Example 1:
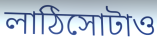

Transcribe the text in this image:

লাঠিসোটাও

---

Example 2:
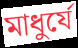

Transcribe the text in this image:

মাধুর্যে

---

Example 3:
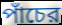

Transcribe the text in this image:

পাঁচের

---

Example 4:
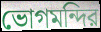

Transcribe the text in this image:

ভোগমন্দির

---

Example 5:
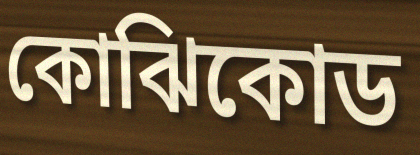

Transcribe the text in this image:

কোঝিকোড